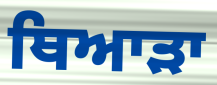
ਥਿਆੜਾ